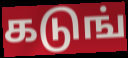
கடுங்